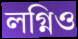
লগ্নিও